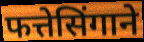
फत्तेसिंगाने